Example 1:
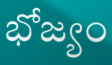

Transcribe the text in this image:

భోజ్యం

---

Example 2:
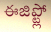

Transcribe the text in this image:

ఈజిప్ట్లో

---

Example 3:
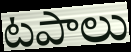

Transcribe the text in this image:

టపాలు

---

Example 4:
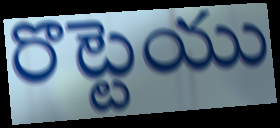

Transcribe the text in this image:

రొట్టెయు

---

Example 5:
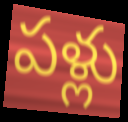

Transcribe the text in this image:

పళ్లు